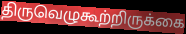
திருவெழுகூற்றிருக்கை